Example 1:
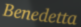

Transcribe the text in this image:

Benedetta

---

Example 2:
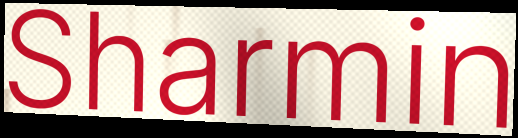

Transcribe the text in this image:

Sharmin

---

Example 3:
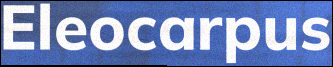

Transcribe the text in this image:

Eleocarpus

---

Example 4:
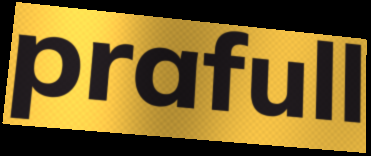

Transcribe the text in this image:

prafull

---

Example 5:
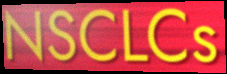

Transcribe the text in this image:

NSCLCs